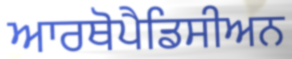
ਆਰਥੋਪੈਡਿਸੀਅਨ